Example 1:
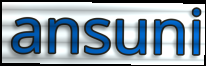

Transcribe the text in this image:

ansuni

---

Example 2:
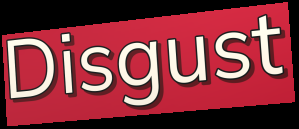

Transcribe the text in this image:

Disgust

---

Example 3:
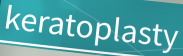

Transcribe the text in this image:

keratoplasty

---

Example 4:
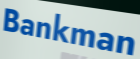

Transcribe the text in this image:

Bankman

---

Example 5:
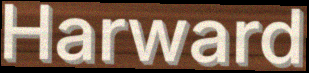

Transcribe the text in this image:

Harward